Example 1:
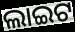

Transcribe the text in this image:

ଲାଇଟ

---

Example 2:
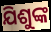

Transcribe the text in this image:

ଯିଶୁଙ୍କ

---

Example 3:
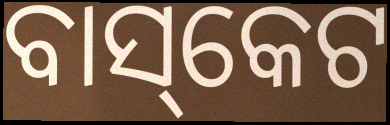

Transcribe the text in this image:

ବାସ୍‌କେଟ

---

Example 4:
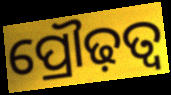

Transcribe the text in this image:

ପ୍ରୌଢ଼ତ୍ୱ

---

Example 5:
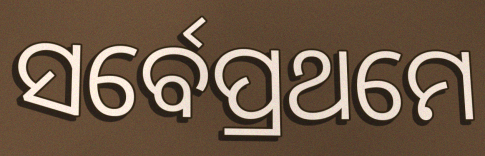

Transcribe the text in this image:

ସର୍ବେପ୍ରଥମେ